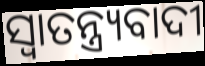
ସ୍ୱାତନ୍ତ୍ର୍ୟବାଦୀ